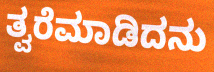
ತ್ವರೆಮಾಡಿದನು